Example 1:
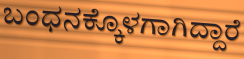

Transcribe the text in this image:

ಬಂಧನಕ್ಕೊಳಗಾಗಿದ್ದಾರೆ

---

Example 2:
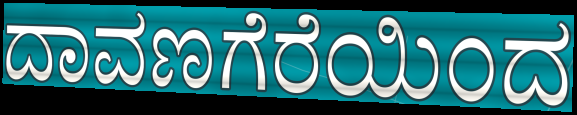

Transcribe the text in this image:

ದಾವಣಗೆರೆಯಿಂದ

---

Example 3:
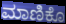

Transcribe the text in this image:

ಮಾಣಿಕೊ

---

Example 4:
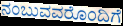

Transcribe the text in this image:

ನಂಬುವವರೊಂದಿಗೆ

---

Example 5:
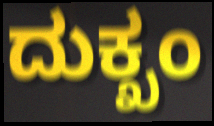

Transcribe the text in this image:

ದುಕ್ಖಂ